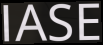
IASE